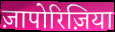
ज़ापोरिज़िया